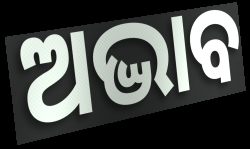
ଅଦ୍ଭାବ